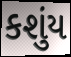
કશુંય